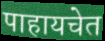
पाहायचेत